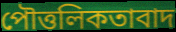
পৌত্তলিকতাবাদ